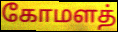
கோமளத்